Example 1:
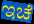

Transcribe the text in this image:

ಇಚೆ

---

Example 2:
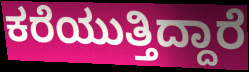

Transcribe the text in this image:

ಕರೆಯುತ್ತಿದ್ದಾರೆ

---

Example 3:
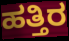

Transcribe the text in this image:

ಹತ್ತಿರ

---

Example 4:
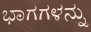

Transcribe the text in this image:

ಭಾಗಗಳನ್ನು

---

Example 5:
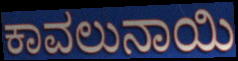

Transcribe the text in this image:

ಕಾವಲುನಾಯಿ